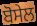
ਬੋਸੇਲ